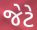
જેટે